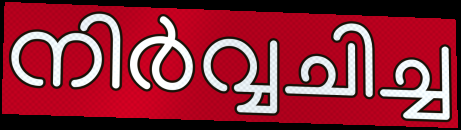
നിർവ്വചിച്ച